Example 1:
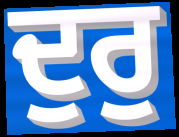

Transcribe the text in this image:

ਦੁਰੁ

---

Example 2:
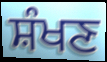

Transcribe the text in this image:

ਸ਼ੰਖਣ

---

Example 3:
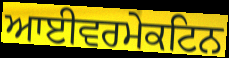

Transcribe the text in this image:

ਆਈਵਰਮੇਕਟਿਨ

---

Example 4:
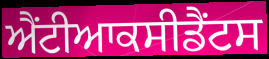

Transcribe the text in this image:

ਐਂਟੀਆਕਸੀਡੈਂਟਸ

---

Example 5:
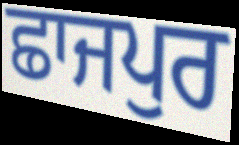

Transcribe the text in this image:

ਛਾਜਪੁਰ